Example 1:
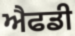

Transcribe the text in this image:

ਐਫਡੀ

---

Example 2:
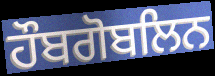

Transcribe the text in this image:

ਹੌਬਗੋਬਲਿਨ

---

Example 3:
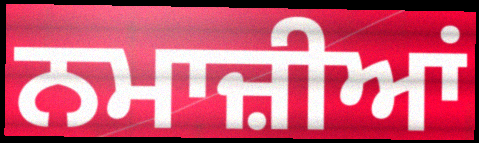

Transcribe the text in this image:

ਨਮਾਜ਼ੀਆਂ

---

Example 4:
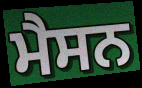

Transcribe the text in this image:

ਮੈਸਨ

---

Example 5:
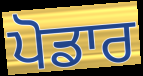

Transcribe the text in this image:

ਪੋਡਾਰ